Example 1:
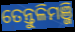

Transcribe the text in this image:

ତେନ୍ତୁଳିମଞ୍ଜି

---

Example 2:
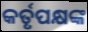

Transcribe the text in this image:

କର୍ତୃପକ୍ଷଙ୍କ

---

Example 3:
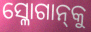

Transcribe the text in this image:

ସ୍ଳୋଗାନ୍‌କୁ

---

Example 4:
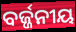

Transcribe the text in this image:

ବର୍ଜ୍ଜନୀୟ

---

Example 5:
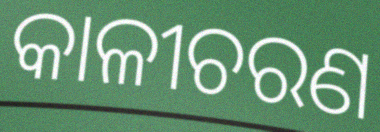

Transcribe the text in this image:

କାଳୀଚରଣ